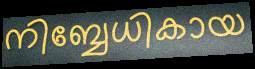
നിബ്ബേധികായ